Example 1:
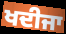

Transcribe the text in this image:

ਖਦੀਜਾ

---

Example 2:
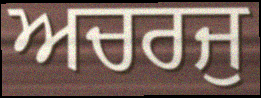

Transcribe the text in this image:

ਅਚਰਜੁ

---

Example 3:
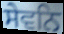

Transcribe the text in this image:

ਸੇਵਨਿ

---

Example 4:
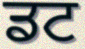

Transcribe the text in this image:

ਡਟ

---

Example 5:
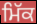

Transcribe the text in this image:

ਮਿੱਕ